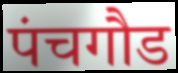
पंचगौड